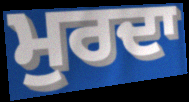
ਮੁਰਦਾ